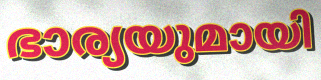
ഭാര്യയുമായി